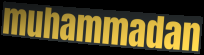
muhammadan